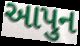
આપુન